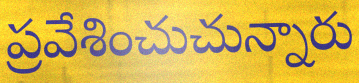
ప్రవేశించుచున్నారు